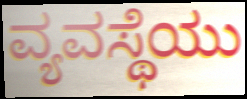
ವ್ಯವಸ್ಥೆಯು